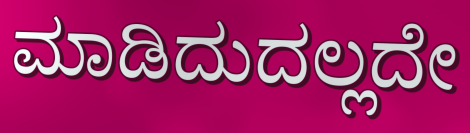
ಮಾಡಿದುದಲ್ಲದೇ